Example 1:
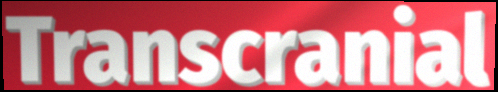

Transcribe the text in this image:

Transcranial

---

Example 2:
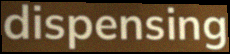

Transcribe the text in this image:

dispensing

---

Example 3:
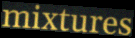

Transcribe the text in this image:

mixtures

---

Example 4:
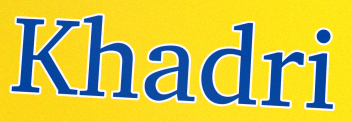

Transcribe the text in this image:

Khadri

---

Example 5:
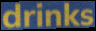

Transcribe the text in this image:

drinks